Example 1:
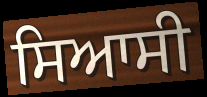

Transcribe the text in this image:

ਸਿਆਸੀ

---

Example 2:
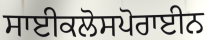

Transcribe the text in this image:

ਸਾਈਕਲੋਸਪੋਰਾਈਨ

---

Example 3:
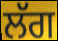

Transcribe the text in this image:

ਲੱਗ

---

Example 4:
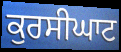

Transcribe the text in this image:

ਕੁਰਸੀਘਾਟ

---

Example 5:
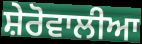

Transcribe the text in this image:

ਸ਼ੇਰੋਵਾਲੀਆ